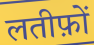
लतीफ़ों